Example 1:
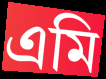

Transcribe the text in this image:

এমি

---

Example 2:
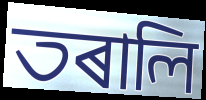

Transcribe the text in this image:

তৰালি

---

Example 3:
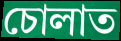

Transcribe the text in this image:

চোলাত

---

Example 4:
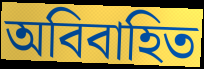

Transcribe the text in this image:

অবিবাহিত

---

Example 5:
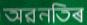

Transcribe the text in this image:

অৱনতিৰ